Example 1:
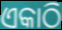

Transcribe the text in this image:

ଏକାଠି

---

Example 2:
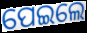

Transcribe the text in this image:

ପେଇଲେ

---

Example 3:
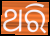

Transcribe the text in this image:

ଥରି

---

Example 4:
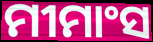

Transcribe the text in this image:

ମୀମାଂସ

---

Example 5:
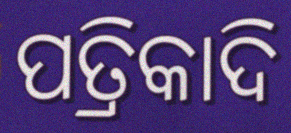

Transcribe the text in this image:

ପତ୍ରିକାଦି